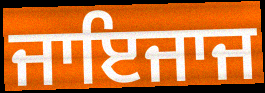
ਜਾਇਜਾਜ